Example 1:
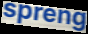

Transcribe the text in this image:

spreng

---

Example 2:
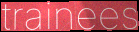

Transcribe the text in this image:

trainees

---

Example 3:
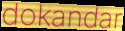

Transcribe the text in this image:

dokandar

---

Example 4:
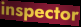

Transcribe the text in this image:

inspector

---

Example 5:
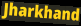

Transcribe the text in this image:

Jharkhand